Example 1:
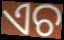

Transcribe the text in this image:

ଏଚ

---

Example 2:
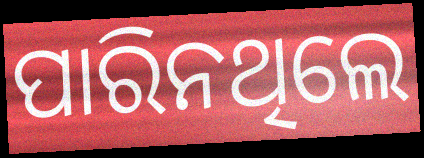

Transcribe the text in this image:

ପାରିନଥିଲେ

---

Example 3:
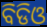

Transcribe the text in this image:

ବିଡିଓ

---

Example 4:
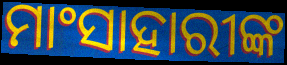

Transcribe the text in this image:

ମାଂସାହାରୀଙ୍କ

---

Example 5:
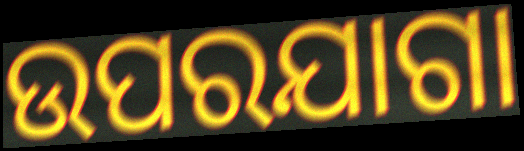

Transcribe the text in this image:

ଉପରଯାଗା